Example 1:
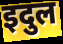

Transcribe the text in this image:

इदुल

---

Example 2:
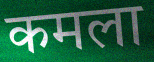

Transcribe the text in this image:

कमला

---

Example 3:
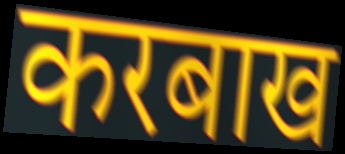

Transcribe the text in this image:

करबाख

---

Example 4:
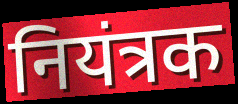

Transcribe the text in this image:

नियंत्रक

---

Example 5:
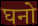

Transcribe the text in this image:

घनो